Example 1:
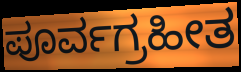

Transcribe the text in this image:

ಪೂರ್ವಗ್ರಹೀತ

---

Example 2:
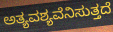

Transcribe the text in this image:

ಅತ್ಯವಶ್ಯವೆನಿಸುತ್ತದೆ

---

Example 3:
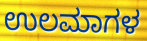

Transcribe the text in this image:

ಉಲಮಾಗಳ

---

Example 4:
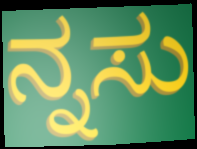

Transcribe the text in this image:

ನ್ನಸು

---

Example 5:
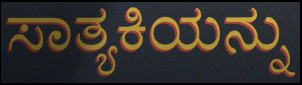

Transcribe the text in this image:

ಸಾತ್ಯಕಿಯನ್ನು